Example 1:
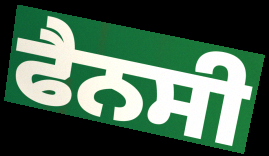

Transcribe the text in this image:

ਫੈਨਸੀ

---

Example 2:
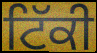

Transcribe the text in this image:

ਟਿੱਕੀ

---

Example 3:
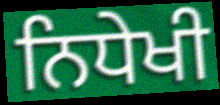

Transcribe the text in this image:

ਨਿਧੇਖੀ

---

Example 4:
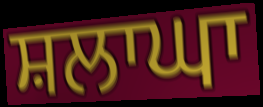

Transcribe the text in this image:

ਸ਼ਲਾਘਾ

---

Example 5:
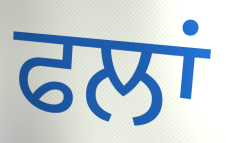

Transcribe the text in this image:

ਫਲਾਂ